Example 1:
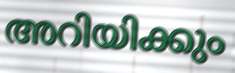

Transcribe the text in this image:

അറിയിക്കും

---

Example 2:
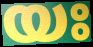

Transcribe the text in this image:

യഃ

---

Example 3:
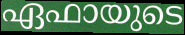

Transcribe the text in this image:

ഏഫായുടെ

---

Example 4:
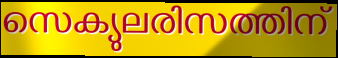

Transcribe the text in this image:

സെക്യുലരിസത്തിന്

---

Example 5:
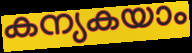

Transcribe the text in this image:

കന്യകയാം